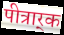
पीत्रार्क